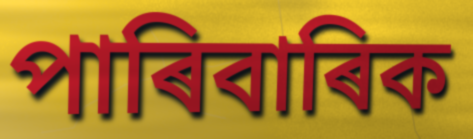
পাৰিবাৰিক